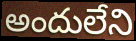
అందులేని